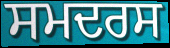
ਸਮਦਰਸ